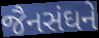
જૈનસંઘને